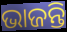
ଭାଜନ୍ତି